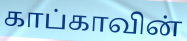
காப்காவின்